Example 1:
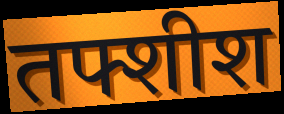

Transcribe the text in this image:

तफ्शीश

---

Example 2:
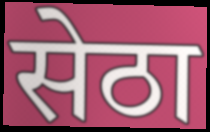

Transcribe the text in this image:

सेठा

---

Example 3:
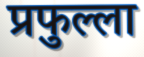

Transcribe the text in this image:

प्रफुल्ला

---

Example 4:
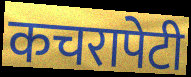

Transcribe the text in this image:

कचरापेटी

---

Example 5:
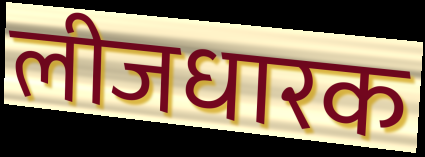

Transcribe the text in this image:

लीजधारक